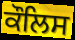
ਕੌਲਿਸ